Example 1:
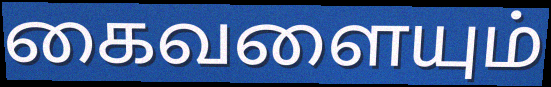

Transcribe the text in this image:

கைவளையும்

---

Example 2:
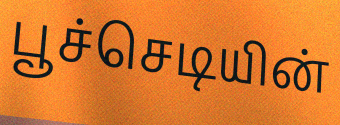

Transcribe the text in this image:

பூச்செடியின்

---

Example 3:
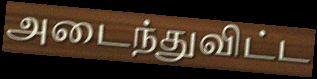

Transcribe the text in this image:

அடைந்துவிட்ட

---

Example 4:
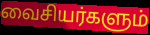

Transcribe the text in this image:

வைசியர்களும்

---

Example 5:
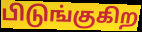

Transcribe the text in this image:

பிடுங்குகிற